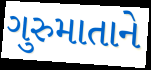
ગુરુમાતાને